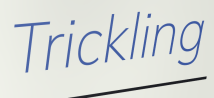
Trickling